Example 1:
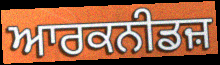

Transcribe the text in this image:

ਆਰਕਨੀਡਜ਼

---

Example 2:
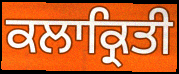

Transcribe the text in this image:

ਕਲਾਕ੍ਰਿਤੀ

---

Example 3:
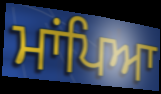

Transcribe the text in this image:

ਮਾਂਪਿਆ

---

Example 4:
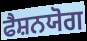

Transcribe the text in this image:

ਫੈਸ਼ਨਯੋਗ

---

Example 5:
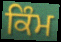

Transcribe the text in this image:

ਕਿੰਮ